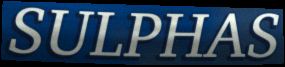
SULPHAS